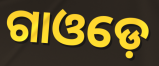
ଗାଓଡ଼େ